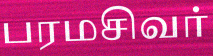
பரமசிவர்